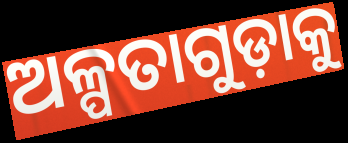
ଅଳ୍ପତାଗୁଡ଼ାକୁ